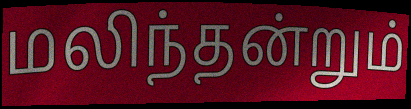
மலிந்தன்றும்